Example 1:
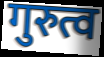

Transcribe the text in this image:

गुरुत्व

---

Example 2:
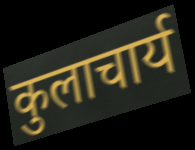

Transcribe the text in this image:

कुलाचार्य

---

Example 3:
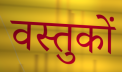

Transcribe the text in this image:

वस्तुकों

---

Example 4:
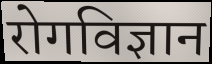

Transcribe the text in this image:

रोगविज्ञान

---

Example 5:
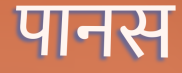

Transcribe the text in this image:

पानस